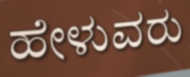
ಹೇಳುವರು